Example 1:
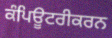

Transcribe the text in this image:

ਕੰਪਿਊਟਰੀਕਰਨ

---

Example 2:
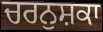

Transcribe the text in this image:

ਚਰਨੁਸ਼ਕਾ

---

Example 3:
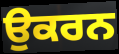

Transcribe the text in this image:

ਉਕਰਨ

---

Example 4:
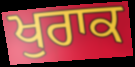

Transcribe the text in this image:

ਖੁਰਾਕ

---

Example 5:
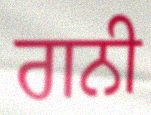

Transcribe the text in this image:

ਗਨੀ